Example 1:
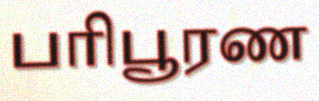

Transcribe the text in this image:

பரிபூரண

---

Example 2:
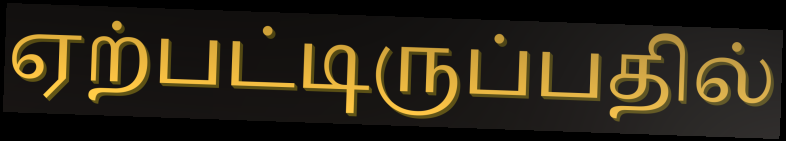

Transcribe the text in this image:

ஏற்பட்டிருப்பதில்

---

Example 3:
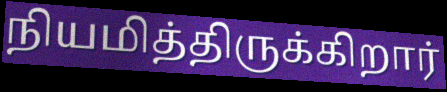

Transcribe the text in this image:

நியமித்திருக்கிறார்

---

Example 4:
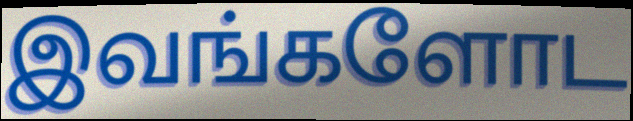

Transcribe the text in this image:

இவங்களோட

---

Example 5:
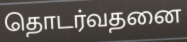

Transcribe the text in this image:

தொடர்வதனை